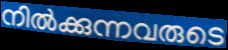
നിൽക്കുന്നവരുടെ